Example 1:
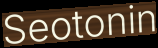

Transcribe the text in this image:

Seotonin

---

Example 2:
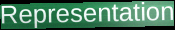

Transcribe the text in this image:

Representation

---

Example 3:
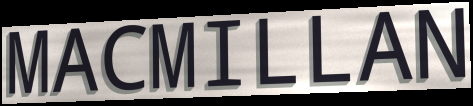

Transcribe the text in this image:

MACMILLAN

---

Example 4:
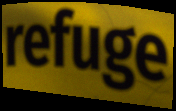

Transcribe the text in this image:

refuge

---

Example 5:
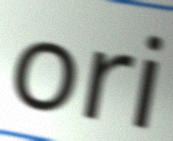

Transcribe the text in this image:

ori